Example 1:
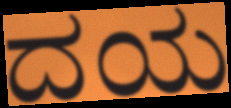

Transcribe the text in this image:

ದಯ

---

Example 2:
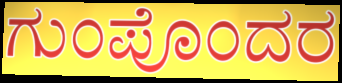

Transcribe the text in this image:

ಗುಂಪೊಂದರ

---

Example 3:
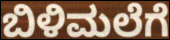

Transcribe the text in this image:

ಬಿಳಿಮಲೆಗೆ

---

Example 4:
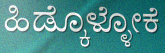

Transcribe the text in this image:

ಹಿಡ್ಕೊಳ್ಳೋಕೆ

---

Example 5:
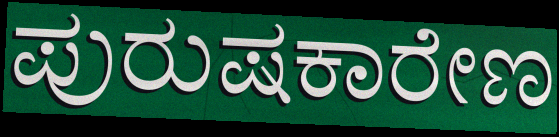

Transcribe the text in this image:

ಪುರುಷಕಾರೇಣ